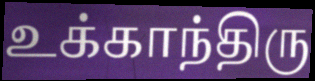
உக்காந்திரு